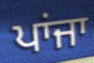
ਪਾਂਜਾ